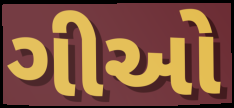
ગીઓ